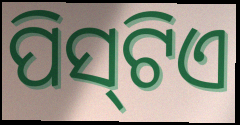
ପିସ୍‌ଟିଏ